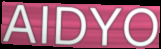
AIDYO